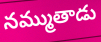
నమ్ముతాడు